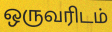
ஒருவரிடம்